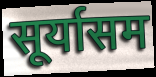
सूर्यासम